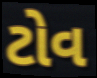
ટોવ